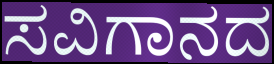
ಸವಿಗಾನದ